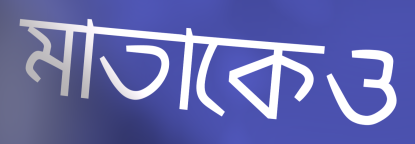
মাতাকেও